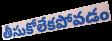
తీసుకోలేకపోవడం